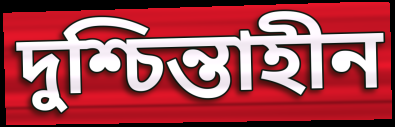
দুশ্চিন্তাহীন